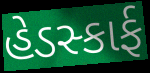
હેડસ્કાર્ફ